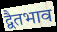
द्वैतभाव